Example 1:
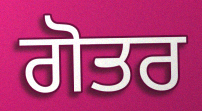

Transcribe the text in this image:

ਗੋਤਰ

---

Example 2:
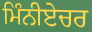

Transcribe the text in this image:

ਮਿੰਨੀਏਚਰ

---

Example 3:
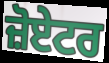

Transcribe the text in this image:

ਜ਼ੋਏਟਰ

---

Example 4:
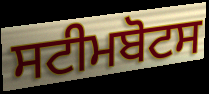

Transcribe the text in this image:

ਸਟੀਮਬੋਟਸ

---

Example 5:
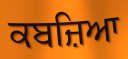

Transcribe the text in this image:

ਕਬਜ਼ਿਆ